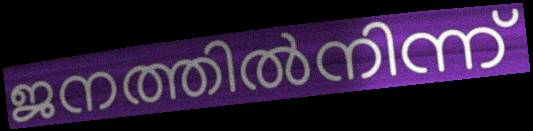
ജനത്തിൽനിന്ന്